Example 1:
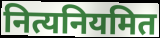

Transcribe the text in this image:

नित्यनियमित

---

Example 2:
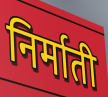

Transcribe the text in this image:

निर्माती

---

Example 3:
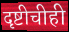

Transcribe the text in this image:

दृष्टीचीही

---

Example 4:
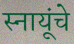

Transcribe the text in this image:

स्नायूंचे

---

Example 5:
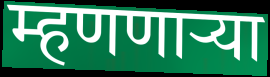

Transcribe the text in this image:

म्हणणार्‍या